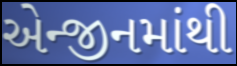
એન્જીનમાંથી